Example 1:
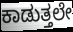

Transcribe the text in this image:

ಕಾಡುತ್ತಲೇ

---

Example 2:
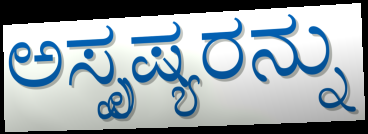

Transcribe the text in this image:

ಅಸ್ಪೃಷ್ಯರನ್ನು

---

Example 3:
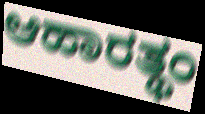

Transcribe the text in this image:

ಆಹಾರತ್ಥಂ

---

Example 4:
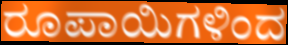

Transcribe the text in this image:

ರೂಪಾಯಿಗಳಿಂದ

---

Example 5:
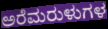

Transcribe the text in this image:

ಅರೆಮರುಳುಗಳ